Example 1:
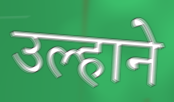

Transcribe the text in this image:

उल्हाने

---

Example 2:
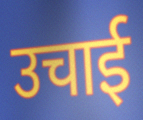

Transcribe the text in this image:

उचाई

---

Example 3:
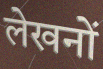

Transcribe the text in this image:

लेखनों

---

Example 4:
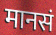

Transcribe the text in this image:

मानसं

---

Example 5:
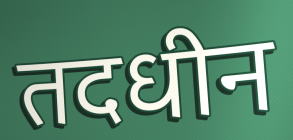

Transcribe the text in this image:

तदधीन